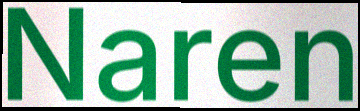
Naren